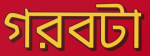
গরবটা